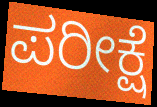
ಪರೀಕ್ಷೆ